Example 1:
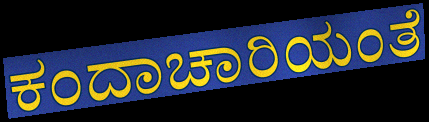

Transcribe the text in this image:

ಕಂದಾಚಾರಿಯಂತೆ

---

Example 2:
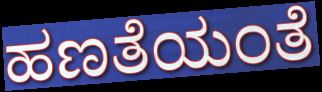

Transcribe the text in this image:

ಹಣತೆಯಂತೆ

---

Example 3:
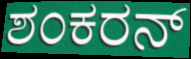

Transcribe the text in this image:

ಶಂಕರನ್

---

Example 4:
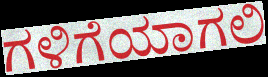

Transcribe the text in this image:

ಗಳಿಗೆಯಾಗಲಿ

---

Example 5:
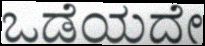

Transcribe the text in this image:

ಒಡೆಯದೇ